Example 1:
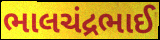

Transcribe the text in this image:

ભાલચંદ્રભાઈ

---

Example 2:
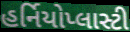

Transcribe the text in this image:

હર્નિયોપ્લાસ્ટી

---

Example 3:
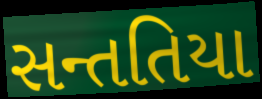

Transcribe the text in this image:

સન્તતિયા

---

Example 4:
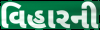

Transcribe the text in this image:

વિહારની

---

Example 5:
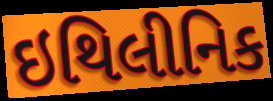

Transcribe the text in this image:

ઇથિલીનિક